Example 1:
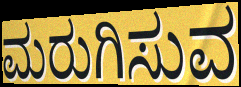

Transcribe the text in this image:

ಮರುಗಿಸುವ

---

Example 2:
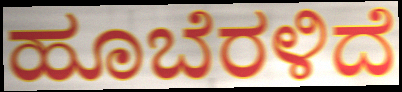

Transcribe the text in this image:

ಹೂಬೆರಳಿದೆ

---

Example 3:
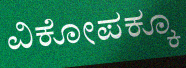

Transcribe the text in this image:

ವಿಕೋಪಕ್ಕೂ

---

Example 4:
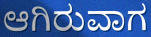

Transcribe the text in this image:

ಆಗಿರುವಾಗ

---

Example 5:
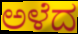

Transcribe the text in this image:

ಅಳೆದ